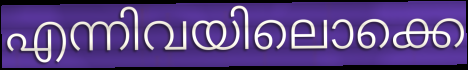
എന്നിവയിലൊക്കെ